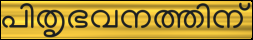
പിതൃഭവനത്തിന്